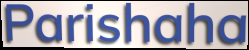
Parishaha